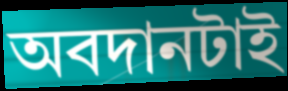
অবদানটাই